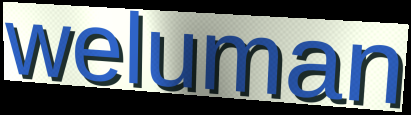
weluman